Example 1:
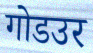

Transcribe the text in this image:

गोडउर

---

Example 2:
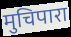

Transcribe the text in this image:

मुचिपारा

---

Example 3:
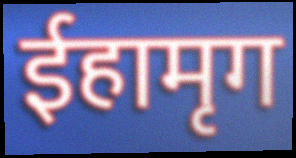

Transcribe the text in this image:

ईहामृग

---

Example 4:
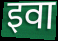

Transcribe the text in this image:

इवा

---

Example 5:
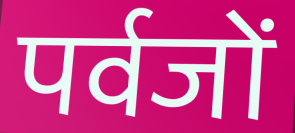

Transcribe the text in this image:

पर्वजों